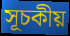
সূচকীয়